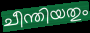
ചീന്തിയതും